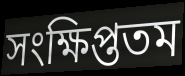
সংক্ষিপ্ততম